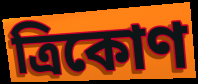
ত্ৰিকোণ